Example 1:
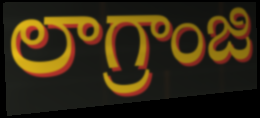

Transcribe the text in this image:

లాగ్రాంజి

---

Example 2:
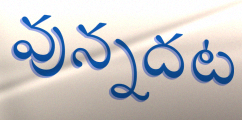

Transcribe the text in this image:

వున్నదట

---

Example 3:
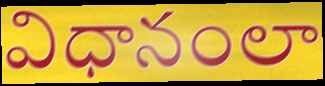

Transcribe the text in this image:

విధానంలా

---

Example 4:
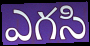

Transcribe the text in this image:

ఎగసి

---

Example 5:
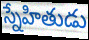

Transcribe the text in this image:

స్నేహితుడు